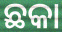
ଛକା